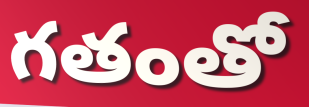
గతంతో